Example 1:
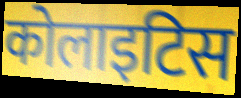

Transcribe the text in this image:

कोलाइटिस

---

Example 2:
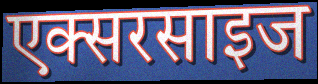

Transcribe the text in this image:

एक्सरसाइज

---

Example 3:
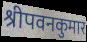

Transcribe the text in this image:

श्रीपवनकुमार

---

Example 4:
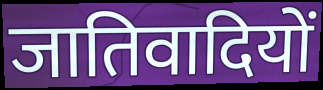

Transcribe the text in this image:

जातिवादियों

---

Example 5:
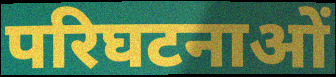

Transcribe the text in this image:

परिघटनाओं